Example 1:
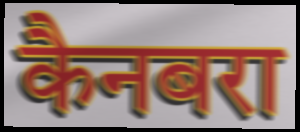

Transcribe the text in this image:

कैनबरा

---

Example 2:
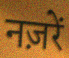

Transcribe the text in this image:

नज़रें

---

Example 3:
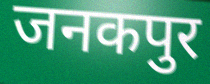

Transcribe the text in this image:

जनकपुर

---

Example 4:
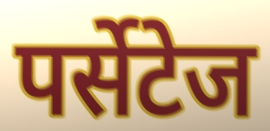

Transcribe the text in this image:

पर्सेटेज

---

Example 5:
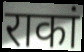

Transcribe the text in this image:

राकां